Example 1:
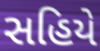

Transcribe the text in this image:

સહિયે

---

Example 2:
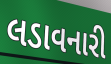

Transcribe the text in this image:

લડાવનારી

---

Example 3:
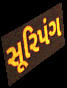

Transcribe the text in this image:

સૂરિપંગ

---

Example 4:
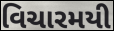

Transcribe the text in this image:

વિચારમયી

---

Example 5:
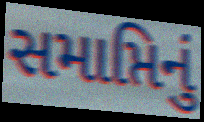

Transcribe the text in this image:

સમાપ્તિનું